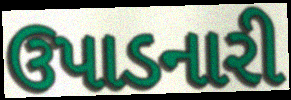
ઉપાડનારી